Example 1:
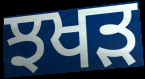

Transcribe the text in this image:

ਝਖੜ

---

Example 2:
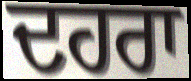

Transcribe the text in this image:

ਦਹਰਾ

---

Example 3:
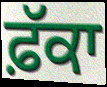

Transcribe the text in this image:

ਫ਼ੱਕਾ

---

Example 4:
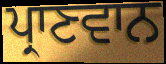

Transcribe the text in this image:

ਪ੍ਰਾਣਵਾਨ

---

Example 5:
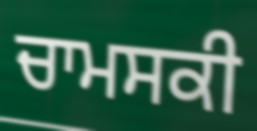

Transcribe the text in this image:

ਚਾਮਸਕੀ